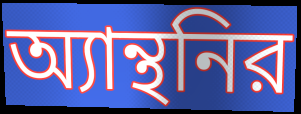
অ্যান্থনির